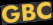
GBC